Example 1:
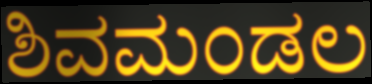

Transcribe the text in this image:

ಶಿವಮಂಡಲ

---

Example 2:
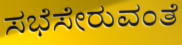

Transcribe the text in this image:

ಸಭೆಸೇರುವಂತೆ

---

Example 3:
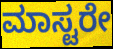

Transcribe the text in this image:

ಮಾಸ್ಟರೇ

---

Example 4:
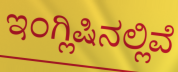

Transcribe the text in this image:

ಇಂಗ್ಲಿಷಿನಲ್ಲಿವೆ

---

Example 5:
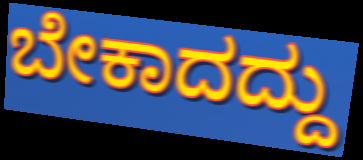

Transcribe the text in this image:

ಬೇಕಾದದ್ದು